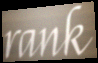
rank